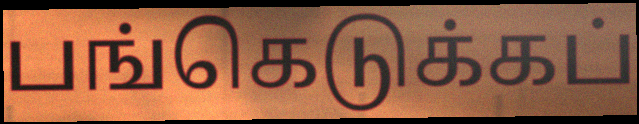
பங்கெடுக்கப்